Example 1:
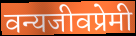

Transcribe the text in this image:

वन्यजीवप्रेमी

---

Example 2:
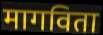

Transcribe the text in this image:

मागविता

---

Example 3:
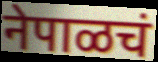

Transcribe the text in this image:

नेपाळचं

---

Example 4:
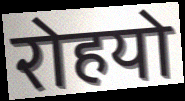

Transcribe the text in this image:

रोहयो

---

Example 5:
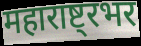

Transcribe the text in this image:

महाराष्ट्रभर